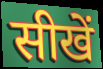
सीखें